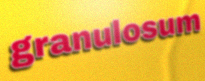
granulosum